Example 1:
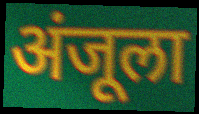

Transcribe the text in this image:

अंजूला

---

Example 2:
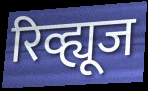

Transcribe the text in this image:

रिव्ह्यूज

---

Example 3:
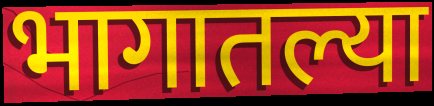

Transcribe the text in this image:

भागातल्या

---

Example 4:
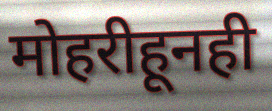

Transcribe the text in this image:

मोहरीहूनही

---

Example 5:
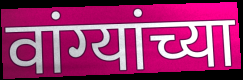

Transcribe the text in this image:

वांग्यांच्या